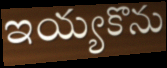
ఇయ్యకొను